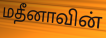
மதீனாவின்